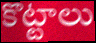
కొట్టాలు